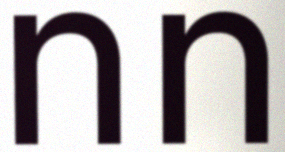
nn